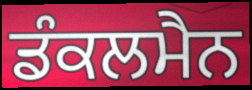
ਡੰਕਲਮੈਨ